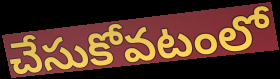
చేసుకోవటంలో